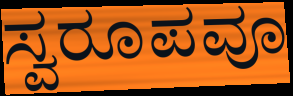
ಸ್ವರೂಪವೂ